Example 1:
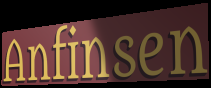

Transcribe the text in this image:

Anfinsen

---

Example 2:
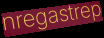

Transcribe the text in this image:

nregastrep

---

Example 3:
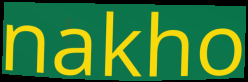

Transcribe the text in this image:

nakho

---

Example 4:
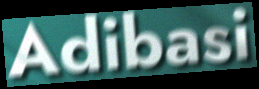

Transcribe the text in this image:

Adibasi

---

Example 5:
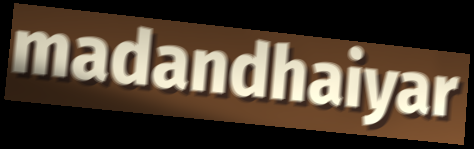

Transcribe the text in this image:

madandhaiyar